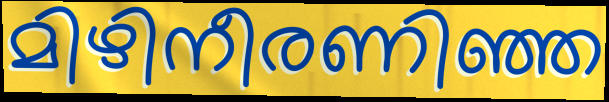
മിഴിനീരണിഞ്ഞ